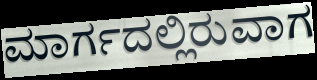
ಮಾರ್ಗದಲ್ಲಿರುವಾಗ